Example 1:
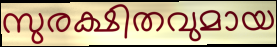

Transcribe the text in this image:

സുരക്ഷിതവുമായ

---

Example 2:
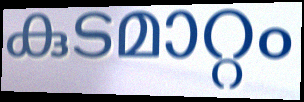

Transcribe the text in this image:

കുടമാറ്റം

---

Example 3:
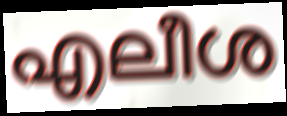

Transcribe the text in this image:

എലീശ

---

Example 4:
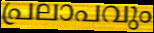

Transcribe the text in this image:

പ്രലാപവും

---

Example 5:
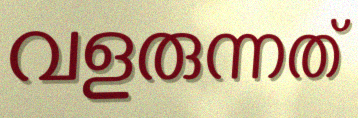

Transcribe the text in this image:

വളരുന്നത്